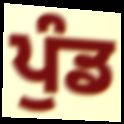
ਪੁੰਡ